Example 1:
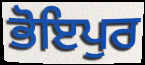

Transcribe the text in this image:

ਭੋਇਪੁਰ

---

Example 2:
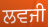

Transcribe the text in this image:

ਲਵਜੀ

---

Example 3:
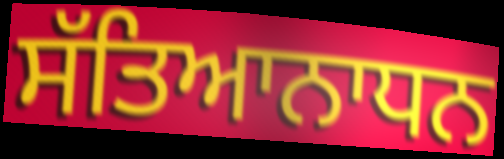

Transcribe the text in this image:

ਸੱਤਿਆਨਾਧਨ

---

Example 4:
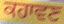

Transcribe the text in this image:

ਕਹਾਵਣ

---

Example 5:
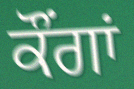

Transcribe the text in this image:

ਕੌਂਗਾਂ